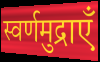
स्वर्णमुद्राएँ